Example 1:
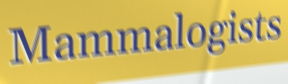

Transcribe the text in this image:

Mammalogists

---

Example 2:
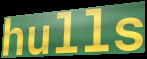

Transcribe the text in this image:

hulls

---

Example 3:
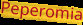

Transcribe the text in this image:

Peperomia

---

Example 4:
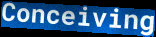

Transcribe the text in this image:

Conceiving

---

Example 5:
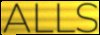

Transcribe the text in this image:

ALLS